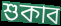
শুকাব